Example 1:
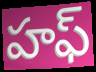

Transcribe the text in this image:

హఫ్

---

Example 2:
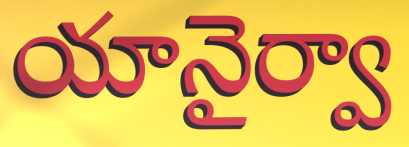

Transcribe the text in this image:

యానైర్వా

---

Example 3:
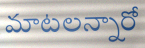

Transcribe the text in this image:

మాటలన్నారో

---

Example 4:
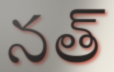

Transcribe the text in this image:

నత్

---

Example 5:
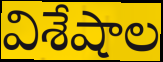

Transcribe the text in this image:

విశేషాల